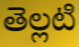
తెల్లటి